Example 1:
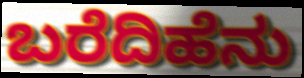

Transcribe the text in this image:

ಬರೆದಿಹೆನು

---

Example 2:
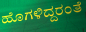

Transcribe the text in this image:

ಹೊಗಳಿದ್ದರಂತೆ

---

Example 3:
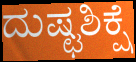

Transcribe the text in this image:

ದುಷ್ಟಶಿಕ್ಷೆ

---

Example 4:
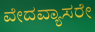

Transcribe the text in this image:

ವೇದವ್ಯಾಸರೇ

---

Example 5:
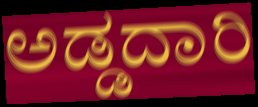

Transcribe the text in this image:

ಅಡ್ಡದಾರಿ